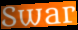
Swar